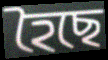
হৈছে